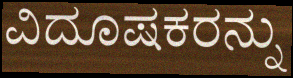
ವಿದೂಷಕರನ್ನು